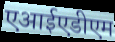
एआईएडीएम